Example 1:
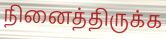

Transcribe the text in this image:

நினைத்திருக்க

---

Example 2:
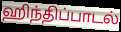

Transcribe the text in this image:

ஹிந்திப்பாடல்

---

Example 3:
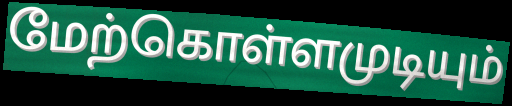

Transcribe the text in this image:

மேற்கொள்ளமுடியும்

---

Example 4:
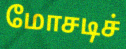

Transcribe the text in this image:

மோசடிச்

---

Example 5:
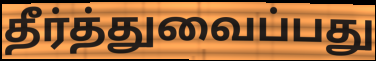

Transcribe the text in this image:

தீர்த்துவைப்பது